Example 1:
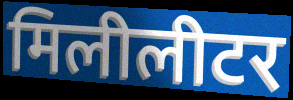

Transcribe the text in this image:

मिलीलीटर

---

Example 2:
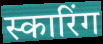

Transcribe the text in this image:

स्कारिंग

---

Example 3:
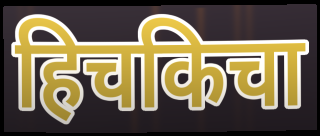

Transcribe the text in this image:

हिचकिचा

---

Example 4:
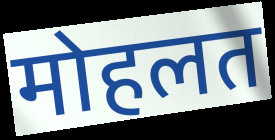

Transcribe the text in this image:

मोहलत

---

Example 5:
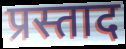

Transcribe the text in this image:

प्रस्ताद